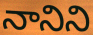
నానిని